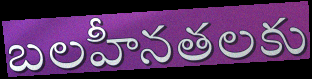
బలహీనతలకు